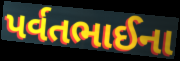
પર્વતભાઈના